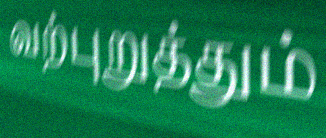
வற்புறுத்தும்